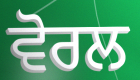
ਵੋਰਲ